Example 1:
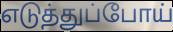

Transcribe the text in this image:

எடுத்துப்போய்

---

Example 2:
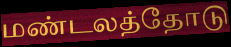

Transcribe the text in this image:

மண்டலத்தோடு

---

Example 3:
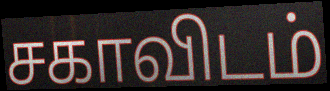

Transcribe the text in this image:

சகாவிடம்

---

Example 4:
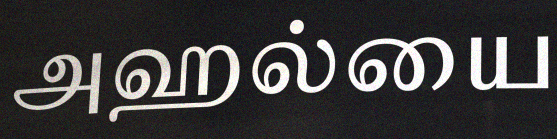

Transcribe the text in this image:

அஹல்யை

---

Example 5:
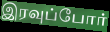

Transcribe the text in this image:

இரவுப்போர்